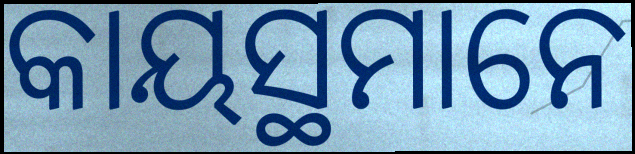
କାୟସ୍ଥମାନେ